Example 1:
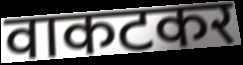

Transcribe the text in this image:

वाकटकर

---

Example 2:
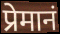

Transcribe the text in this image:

प्रेमानं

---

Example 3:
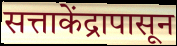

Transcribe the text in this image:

सत्ताकेंद्रापासून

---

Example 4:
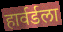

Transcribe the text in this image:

हार्वर्डला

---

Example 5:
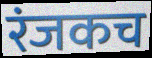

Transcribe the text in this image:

रंजकच